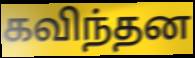
கவிந்தன